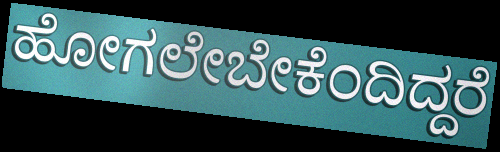
ಹೋಗಲೇಬೇಕೆಂದಿದ್ದರೆ